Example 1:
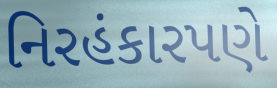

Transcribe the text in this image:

નિરહંકારપણે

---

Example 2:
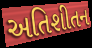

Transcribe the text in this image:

અતિશીતન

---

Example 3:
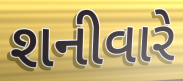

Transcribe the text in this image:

શનીવારે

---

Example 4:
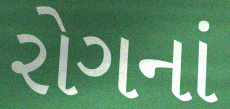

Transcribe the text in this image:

રોગનાં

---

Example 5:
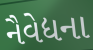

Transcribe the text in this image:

નૈવેદ્યના